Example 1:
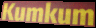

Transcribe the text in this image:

Kumkum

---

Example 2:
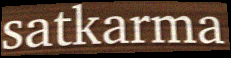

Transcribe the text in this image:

satkarma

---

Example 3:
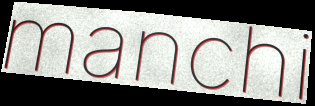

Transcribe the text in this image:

manchi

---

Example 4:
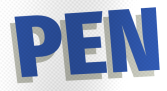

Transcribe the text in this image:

PEN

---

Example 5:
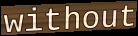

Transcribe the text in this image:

without